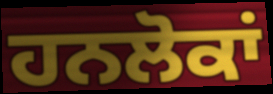
ਹਨਲੋਕਾਂ